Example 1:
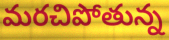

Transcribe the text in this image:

మరచిపోతున్న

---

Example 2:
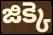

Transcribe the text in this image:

జిక్కె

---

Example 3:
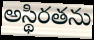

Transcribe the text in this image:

అస్థిరతను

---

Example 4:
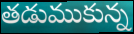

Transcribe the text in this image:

తడుముకున్న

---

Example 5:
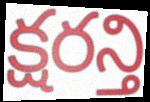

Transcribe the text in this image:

క్షరన్తి